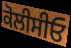
ਕੋਲੀਸੀਓ